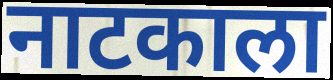
नाटकाला